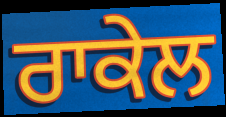
ਰਾਕੇਲ